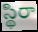
స్థిరా